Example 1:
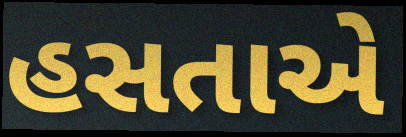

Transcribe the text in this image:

હસતાએ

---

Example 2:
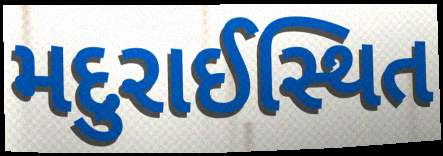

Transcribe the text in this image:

મદુરાઈસ્થિત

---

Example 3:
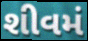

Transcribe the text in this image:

શીવમં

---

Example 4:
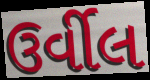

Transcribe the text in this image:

ઉર્વીલ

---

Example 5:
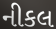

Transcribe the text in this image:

નીકલ